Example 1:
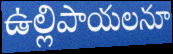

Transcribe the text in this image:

ఉల్లిపాయలనూ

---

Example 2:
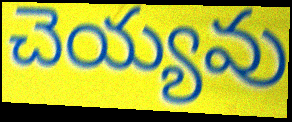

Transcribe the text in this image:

చెయ్యవు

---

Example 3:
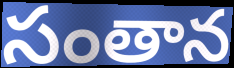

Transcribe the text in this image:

సంతాన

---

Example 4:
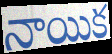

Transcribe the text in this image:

నాయిక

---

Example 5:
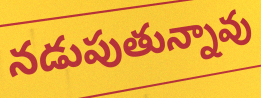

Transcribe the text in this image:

నడుపుతున్నావు